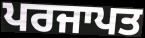
ਪਰਜਾਪਤ